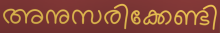
അനുസരിക്കേണ്ടി